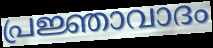
പ്രജ്ഞാവാദം